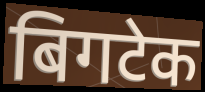
बिगटेक